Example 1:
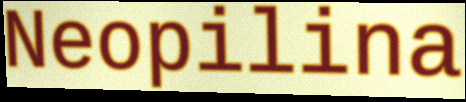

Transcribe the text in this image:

Neopilina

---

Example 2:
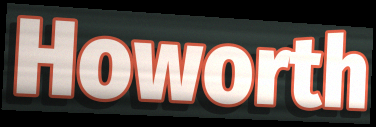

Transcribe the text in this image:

Howorth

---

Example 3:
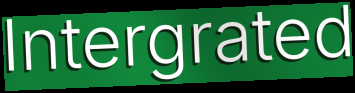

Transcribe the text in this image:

Intergrated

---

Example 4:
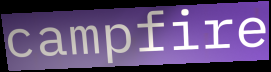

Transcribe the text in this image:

campfire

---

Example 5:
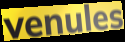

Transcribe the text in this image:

venules